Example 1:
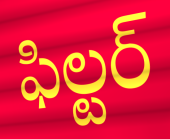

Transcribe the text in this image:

ఫిల్టర్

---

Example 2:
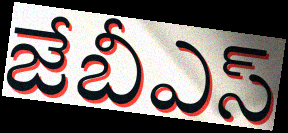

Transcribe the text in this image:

జేబీఎస్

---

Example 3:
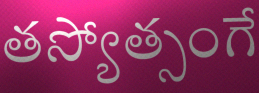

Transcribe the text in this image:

తస్యోత్సంగే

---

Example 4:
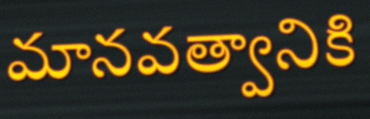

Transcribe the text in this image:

మానవత్వానికి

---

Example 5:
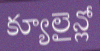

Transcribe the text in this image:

క్యూలైన్లో